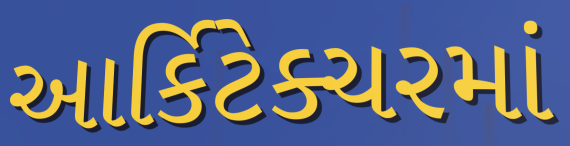
આર્કિટેક્ચરમાં